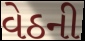
વેઠની